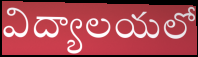
విద్యాలయలో